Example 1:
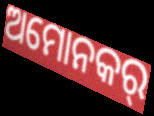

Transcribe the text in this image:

ଅମୋନକର୍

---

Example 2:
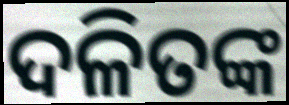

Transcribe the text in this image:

ଦଳିତଙ୍କ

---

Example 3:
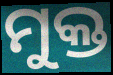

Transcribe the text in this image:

ମୁକ୍ତ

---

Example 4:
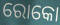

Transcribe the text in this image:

ରୋକୋ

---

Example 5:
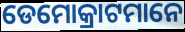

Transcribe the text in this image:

ଡେମୋକ୍ରାଟମାନେ